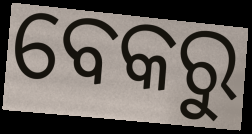
ବେକରୁ